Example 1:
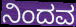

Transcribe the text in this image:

ನಿಂದವ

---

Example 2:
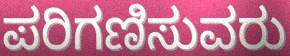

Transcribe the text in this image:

ಪರಿಗಣಿಸುವರು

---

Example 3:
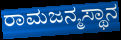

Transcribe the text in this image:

ರಾಮಜನ್ಮಸ್ಥಾನ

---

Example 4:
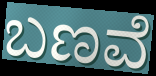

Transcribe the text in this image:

ಬಣವೆ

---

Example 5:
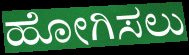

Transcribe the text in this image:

ಹೋಗಿಸಲು